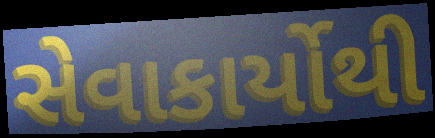
સેવાકાર્યોથી